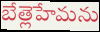
బేత్లెహేమను